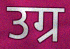
उग्र